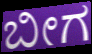
ಬೀಗ